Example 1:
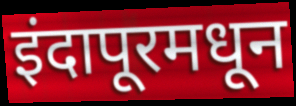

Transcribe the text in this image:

इंदापूरमधून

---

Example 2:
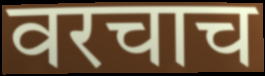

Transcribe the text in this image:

वरचाच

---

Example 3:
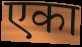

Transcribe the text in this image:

एका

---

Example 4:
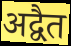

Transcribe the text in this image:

अद्वैत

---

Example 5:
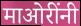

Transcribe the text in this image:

माओरींनी